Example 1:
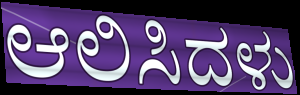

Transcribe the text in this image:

ಆಲಿಸಿದಳು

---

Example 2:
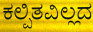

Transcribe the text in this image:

ಕಲ್ಪಿತವಿಲ್ಲದ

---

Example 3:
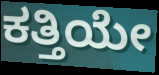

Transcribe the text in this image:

ಕತ್ತಿಯೇ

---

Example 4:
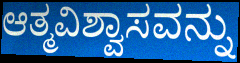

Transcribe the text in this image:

ಆತ್ಮವಿಶ್ವಾಸವನ್ನು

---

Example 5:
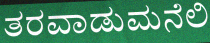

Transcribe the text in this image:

ತರವಾಡುಮನೆಲಿ